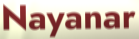
Nayanar